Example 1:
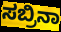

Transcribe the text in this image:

ಸಬ್ರಿನಾ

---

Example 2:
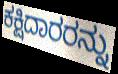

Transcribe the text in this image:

ಕಕ್ಷಿದಾರರನ್ನು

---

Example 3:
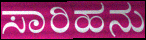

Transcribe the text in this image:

ಸಾರಿಹನು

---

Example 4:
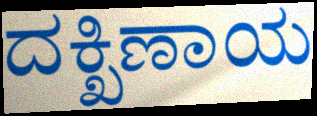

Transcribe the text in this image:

ದಕ್ಖಿಣಾಯ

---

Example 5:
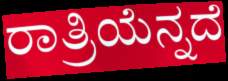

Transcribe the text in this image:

ರಾತ್ರಿಯೆನ್ನದೆ